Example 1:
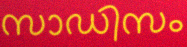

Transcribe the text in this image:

സാഡിസം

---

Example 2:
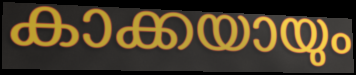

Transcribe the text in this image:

കാക്കയായും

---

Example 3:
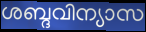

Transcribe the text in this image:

ശബ്ദവിന്യാസ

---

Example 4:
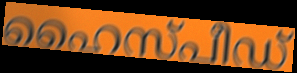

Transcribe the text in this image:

ഹൈസ്പീഡ്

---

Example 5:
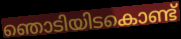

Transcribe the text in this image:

ഞൊടിയിടകൊണ്ട്